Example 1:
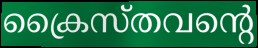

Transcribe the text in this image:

ക്രൈസ്തവന്റെ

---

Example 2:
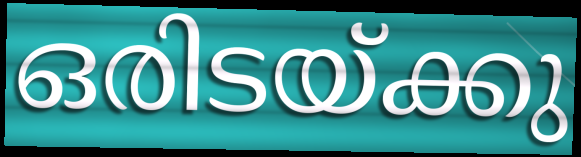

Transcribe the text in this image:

ഒരിടയ്ക്കു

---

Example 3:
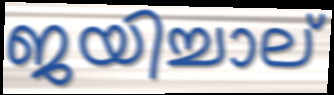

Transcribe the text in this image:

ജയിച്ചാല്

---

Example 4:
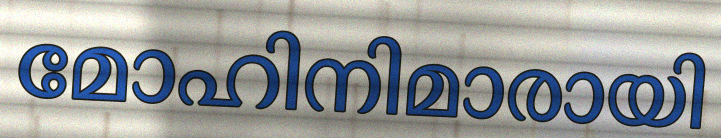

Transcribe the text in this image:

മോഹിനിമാരായി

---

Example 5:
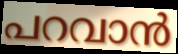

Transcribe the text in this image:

പറവാൻ